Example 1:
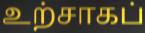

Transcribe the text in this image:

உற்சாகப்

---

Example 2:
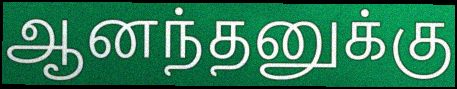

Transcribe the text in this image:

ஆனந்தனுக்கு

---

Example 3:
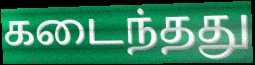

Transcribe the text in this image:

கடைந்தது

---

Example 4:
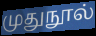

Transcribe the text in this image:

முதுநூல்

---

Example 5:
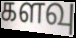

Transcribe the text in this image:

களவு